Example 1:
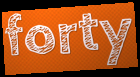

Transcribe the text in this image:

forty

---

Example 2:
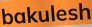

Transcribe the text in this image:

bakulesh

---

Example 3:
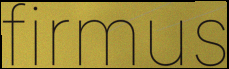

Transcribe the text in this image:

firmus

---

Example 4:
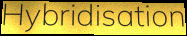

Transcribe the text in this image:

Hybridisation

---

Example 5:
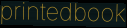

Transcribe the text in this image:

printedbook